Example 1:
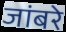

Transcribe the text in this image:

जांबरे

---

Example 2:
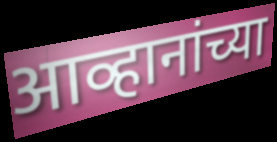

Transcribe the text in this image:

आव्हानांच्या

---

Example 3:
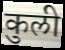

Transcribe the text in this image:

कुली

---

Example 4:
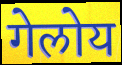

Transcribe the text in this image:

गेलोय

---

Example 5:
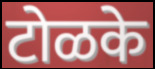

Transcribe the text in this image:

टोळके